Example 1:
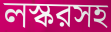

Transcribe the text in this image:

লস্করসহ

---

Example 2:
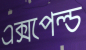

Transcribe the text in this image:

এক্সপেল্ড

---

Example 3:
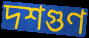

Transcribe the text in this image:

দশগুণ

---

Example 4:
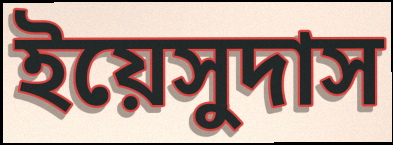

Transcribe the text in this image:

ইয়েসুদাস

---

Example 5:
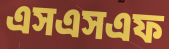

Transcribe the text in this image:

এসএসএফ